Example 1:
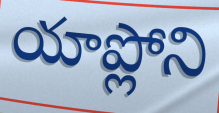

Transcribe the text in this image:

యాప్లోని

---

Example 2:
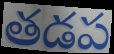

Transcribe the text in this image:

తడప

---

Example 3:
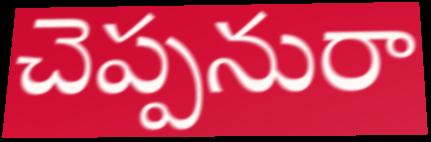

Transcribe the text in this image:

చెప్పనురా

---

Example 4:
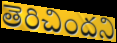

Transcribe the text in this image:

తెరిచిందని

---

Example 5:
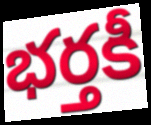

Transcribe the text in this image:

భర్తకీ